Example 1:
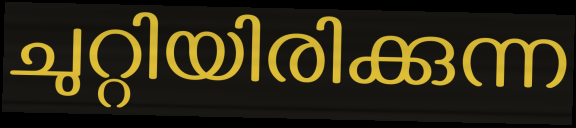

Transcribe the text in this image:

ചുറ്റിയിരിക്കുന്ന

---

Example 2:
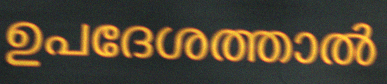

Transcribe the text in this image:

ഉപദേശത്താൽ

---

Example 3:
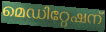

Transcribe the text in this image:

മെഡിറ്റേഷന്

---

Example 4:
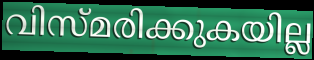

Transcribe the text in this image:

വിസ്മരിക്കുകയില്ല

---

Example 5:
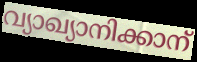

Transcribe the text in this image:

വ്യാഖ്യാനിക്കാന്